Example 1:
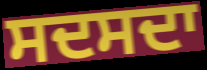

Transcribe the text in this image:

ਸਦਸਦਾ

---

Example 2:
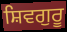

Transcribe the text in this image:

ਸ਼ਿਵਗੁਰੂ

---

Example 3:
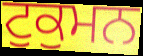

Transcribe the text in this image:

ਟੁਕੁਮਨ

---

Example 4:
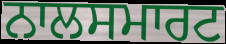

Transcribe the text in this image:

ਨਾਲਸਮਾਰਟ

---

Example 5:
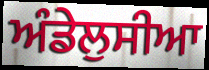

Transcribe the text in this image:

ਅੰਡੇਲੁਸੀਆ